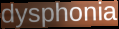
dysphonia